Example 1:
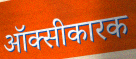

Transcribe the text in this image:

ऑक्सीकारक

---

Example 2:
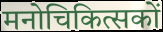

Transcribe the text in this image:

मनोचिकित्सकों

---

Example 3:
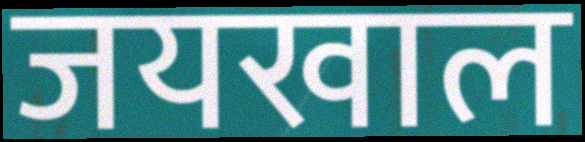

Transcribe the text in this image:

जयखाल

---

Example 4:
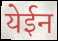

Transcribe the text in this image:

येईन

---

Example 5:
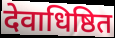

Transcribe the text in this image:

देवाधिष्ठित